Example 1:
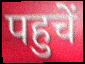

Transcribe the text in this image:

पहुचें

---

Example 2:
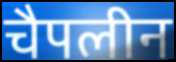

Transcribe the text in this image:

चैपलीन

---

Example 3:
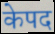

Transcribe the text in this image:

केपद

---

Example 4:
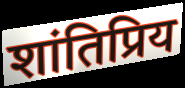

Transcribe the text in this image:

शांतिप्रिय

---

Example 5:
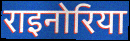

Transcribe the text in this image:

राइनोरिया